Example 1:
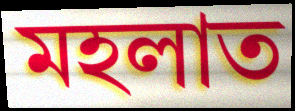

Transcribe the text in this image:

মহলাত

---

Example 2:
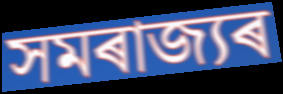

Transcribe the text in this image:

সমৰাজ্যৰ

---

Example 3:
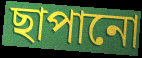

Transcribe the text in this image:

ছাপানো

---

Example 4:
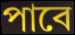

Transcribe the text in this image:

পাবে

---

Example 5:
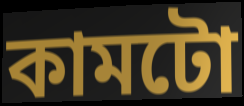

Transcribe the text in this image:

কামটো